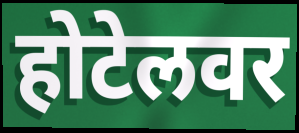
होटेलवर